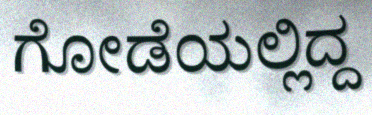
ಗೋಡೆಯಲ್ಲಿದ್ದ